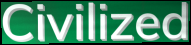
Civilized